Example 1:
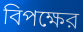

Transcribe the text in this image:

বিপক্ষের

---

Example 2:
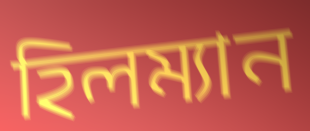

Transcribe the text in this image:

হিলম্যান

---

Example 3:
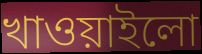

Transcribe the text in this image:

খাওয়াইলো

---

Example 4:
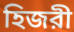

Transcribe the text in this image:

হিজরী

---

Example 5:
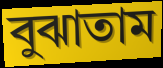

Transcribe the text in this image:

বুঝাতাম